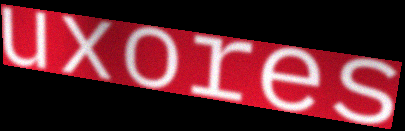
uxores